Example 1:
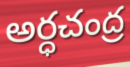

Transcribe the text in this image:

అర్ధచంద్ర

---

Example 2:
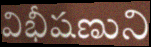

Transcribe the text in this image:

విభీషణుని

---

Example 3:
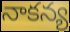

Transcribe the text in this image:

నాకన్య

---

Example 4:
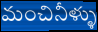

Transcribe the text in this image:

మంచినీళ్ళు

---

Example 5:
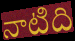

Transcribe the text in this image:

నాటిది